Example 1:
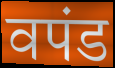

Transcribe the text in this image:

वपंड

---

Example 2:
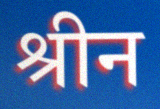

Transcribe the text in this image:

श्रीन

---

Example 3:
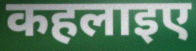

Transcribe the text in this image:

कहलाइए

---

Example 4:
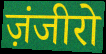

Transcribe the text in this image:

ज़ंजीरो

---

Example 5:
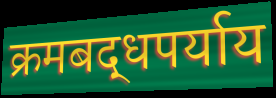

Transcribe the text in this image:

क्रमबद्धपर्याय